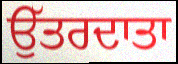
ਉੱਤਰਦਾਤਾ